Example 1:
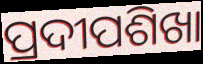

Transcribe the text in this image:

ପ୍ରଦୀପଶିଖା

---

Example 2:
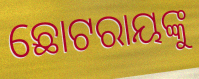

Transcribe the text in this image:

ଛୋଟରାୟଙ୍କୁ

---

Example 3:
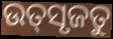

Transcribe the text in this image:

ଉତ୍‌ସୃଜତୁ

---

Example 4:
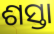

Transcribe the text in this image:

ଶସ୍ତା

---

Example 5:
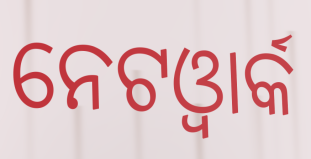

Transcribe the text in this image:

ନେଟଓ୍ବାର୍କ